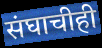
संघाचीही